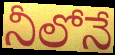
నీలోనే